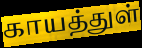
காயத்துள்